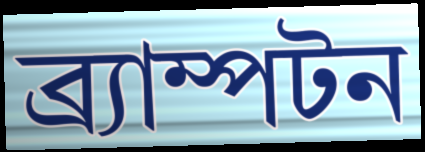
ব্র্যাম্পটন